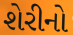
શેરીનો